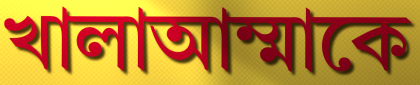
খালাআম্মাকে